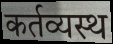
कर्तव्यस्थ